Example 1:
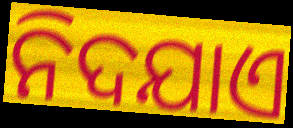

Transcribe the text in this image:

ନିଦଯାଏ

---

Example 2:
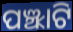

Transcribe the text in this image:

ପଞ୍ଝାଟି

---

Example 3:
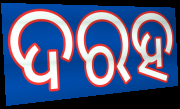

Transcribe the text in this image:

ଦରହ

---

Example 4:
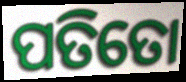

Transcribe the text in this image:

ପତିତୋ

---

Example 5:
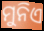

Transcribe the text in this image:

ମୁନିଏ